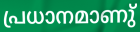
പ്രധാനമാണു്